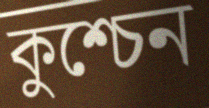
কুশ্চেন